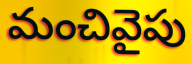
మంచివైపు